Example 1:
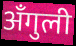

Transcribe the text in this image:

अँगुली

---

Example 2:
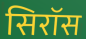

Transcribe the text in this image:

सिरॉस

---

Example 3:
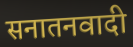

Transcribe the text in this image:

सनातनवादी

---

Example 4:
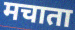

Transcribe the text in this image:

मचाता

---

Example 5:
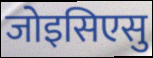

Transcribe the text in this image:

जोइसिएसु